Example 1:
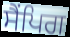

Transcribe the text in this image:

ਸੈਂਪਿਗ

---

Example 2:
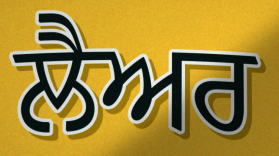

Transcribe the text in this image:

ਲੈਅਰ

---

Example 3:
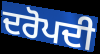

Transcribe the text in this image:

ਦਰੋਪਦੀ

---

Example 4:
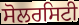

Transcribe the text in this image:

ਸੋਲਰਸਿਟੀ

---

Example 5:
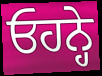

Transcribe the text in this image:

ਓਹਨ੍ਹੇ